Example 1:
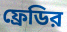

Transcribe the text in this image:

ফ্রেডির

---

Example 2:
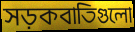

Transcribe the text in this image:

সড়কবাতিগুলো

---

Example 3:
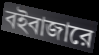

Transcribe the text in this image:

বইবাজারে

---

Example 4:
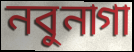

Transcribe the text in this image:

নবুনাগা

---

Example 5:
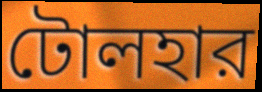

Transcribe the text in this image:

টোলহার